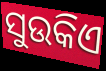
ସୁଉକିଏ